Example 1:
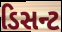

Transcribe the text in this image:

ડિસન્ટ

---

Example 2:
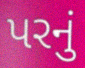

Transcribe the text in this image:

પરનું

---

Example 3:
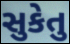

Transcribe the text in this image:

સુકેતુ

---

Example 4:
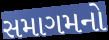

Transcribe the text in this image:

સમાગમનો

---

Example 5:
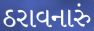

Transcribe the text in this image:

ઠરાવનારું